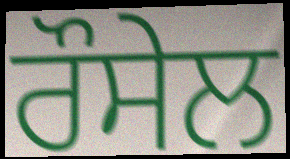
ਰੌਸੇਲ